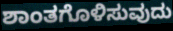
ಶಾಂತಗೊಳಿಸುವುದು